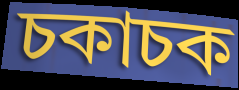
চকাচক